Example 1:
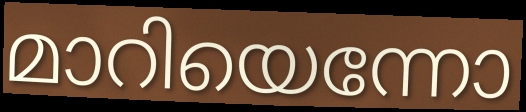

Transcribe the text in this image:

മാറിയെന്നോ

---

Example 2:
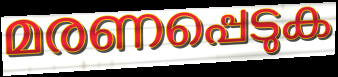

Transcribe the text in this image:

മരണപ്പെടുക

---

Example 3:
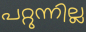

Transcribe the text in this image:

പറ്റുന്നില്ല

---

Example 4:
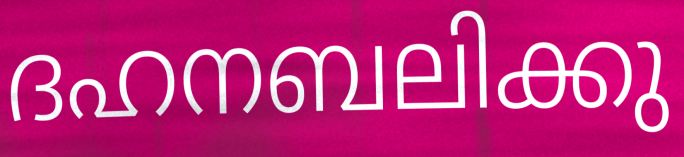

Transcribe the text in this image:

ദഹനബലിക്കു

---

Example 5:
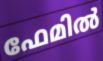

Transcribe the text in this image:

ഫേമിൽ